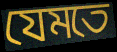
যেমতে